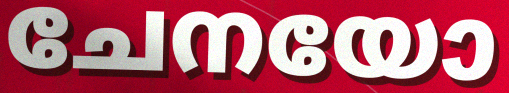
ചേനയോ